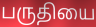
பருதியை